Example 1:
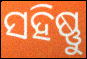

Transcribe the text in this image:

ସହିଷ୍ଣୁ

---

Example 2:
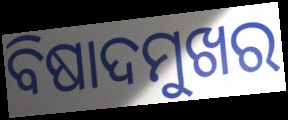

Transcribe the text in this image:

ବିଷାଦମୁଖର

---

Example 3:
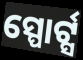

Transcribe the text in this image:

ସ୍ପୋର୍ଟ୍ସ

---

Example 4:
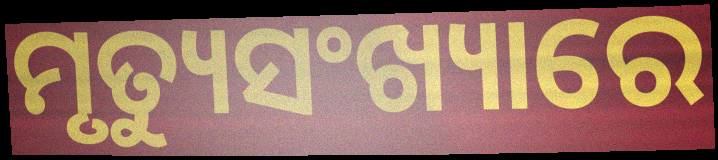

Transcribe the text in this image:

ମୃତ୍ୟୁସଂଖ୍ୟାରେ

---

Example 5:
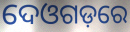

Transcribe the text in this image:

ଦେଓଗଡ଼ରେ